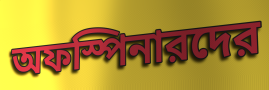
অফস্পিনারদের